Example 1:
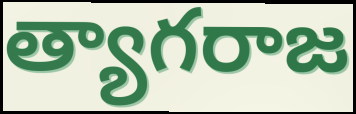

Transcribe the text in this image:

త్యాగరాజ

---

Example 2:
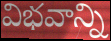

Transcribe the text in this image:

విభవాన్ని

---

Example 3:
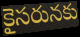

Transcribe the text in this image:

కైసరునకు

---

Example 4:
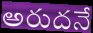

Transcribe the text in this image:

అరుదనే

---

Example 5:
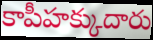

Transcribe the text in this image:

కాపీహక్కుదారు